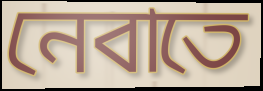
নেবাতে